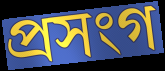
প্রসংগ